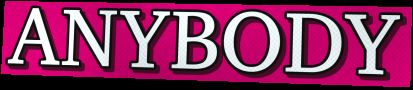
ANYBODY